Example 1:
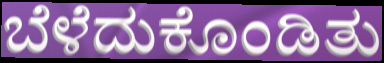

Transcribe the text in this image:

ಬೆಳೆದುಕೊಂಡಿತು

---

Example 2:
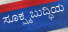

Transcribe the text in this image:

ಸೂಕ್ಷ್ಮಬುದ್ಧಿಯ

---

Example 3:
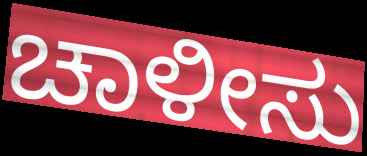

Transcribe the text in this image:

ಚಾಳೀಸು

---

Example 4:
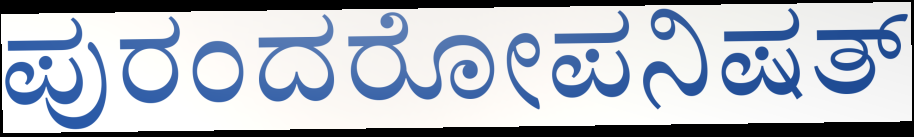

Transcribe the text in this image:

ಪುರಂದರೋಪನಿಷತ್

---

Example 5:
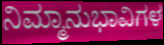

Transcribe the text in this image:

ನಿಮ್ಮಾನುಭಾವಿಗಳ